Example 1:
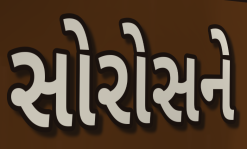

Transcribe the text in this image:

સોરોસને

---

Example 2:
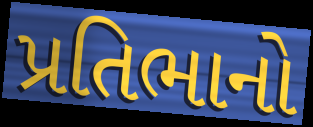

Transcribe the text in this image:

પ્રતિભાનો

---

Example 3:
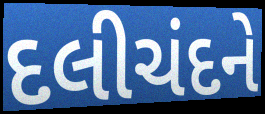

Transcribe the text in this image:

દલીચંદને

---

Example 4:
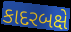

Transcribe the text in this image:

કાદરબક્ષે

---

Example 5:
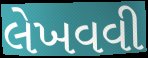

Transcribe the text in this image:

લેખવવી